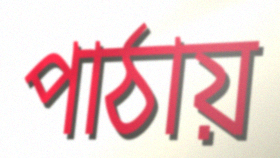
পাঠায়